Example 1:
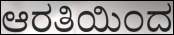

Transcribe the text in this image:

ಆರತಿಯಿಂದ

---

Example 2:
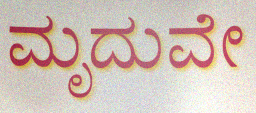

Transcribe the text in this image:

ಮೃದುವೇ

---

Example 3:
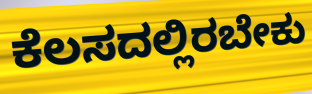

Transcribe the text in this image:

ಕೆಲಸದಲ್ಲಿರಬೇಕು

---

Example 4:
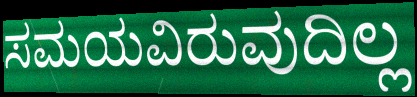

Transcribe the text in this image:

ಸಮಯವಿರುವುದಿಲ್ಲ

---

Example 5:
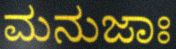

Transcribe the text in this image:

ಮನುಜಾಃ